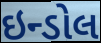
ઇન્ડોલ